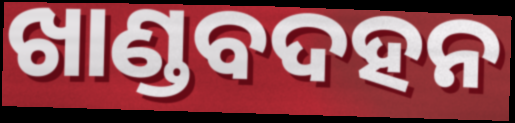
ଖାଣ୍ଡବଦହନ